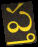
ప్త